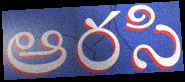
ఆరసి